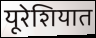
यूरेशियात